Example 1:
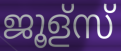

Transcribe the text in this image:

ജൂള്സ്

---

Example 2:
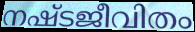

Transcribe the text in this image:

നഷ്ടജീവിതം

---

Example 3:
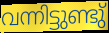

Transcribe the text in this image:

വന്നിട്ടുണ്ടു്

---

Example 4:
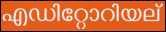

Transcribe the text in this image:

എഡിറ്റോറിയല്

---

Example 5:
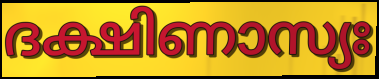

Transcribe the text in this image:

ദക്ഷിണാസ്യഃ